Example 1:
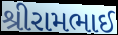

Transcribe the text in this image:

શ્રીરામભાઈ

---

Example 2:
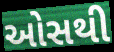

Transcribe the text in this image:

ઓસથી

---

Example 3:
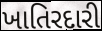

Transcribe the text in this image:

ખાતિરદારી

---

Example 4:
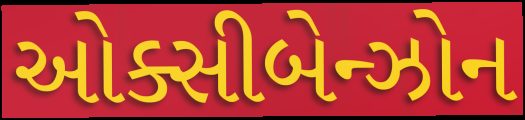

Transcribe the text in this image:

ઓક્સીબેન્ઝોન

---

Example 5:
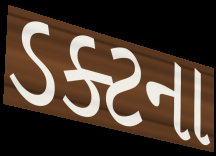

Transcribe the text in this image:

ડક્ટના